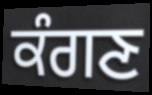
ਕੰਗਣ